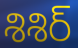
శిశిర్